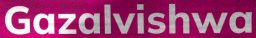
Gazalvishwa